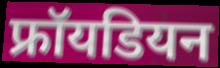
फ्रॉयडियन